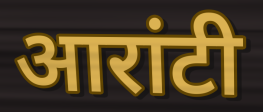
आरांटी